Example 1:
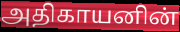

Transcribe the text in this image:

அதிகாயனின்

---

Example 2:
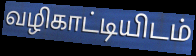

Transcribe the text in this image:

வழிகாட்டியிடம்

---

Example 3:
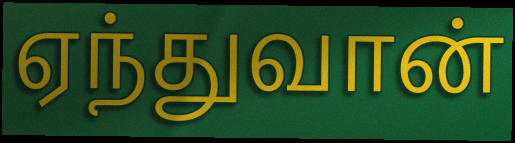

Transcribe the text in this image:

ஏந்துவான்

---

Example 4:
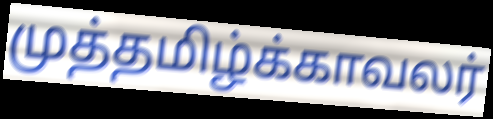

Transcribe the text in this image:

முத்தமிழ்க்காவலர்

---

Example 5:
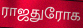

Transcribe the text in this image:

ராஜதுரோக